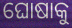
ଘୋଷାକୁ